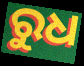
ରୁଧ